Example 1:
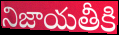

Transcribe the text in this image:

నిజాయతీకి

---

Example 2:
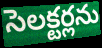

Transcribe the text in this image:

సెలక్టర్లను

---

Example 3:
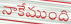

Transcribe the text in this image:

నాకేముంది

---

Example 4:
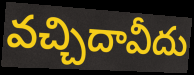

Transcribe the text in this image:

వచ్చిదావీదు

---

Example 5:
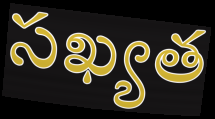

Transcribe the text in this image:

సఖ్యత